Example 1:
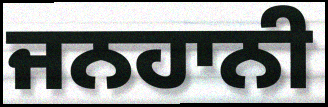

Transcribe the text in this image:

ਜਨਹਾਨੀ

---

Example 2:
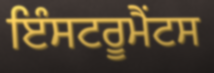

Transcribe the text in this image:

ਇੰਸਟਰੂਮੈਂਟਸ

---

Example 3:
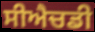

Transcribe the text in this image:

ਸੀਐਚਡੀ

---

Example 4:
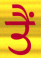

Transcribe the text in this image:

ਤੈਂ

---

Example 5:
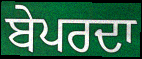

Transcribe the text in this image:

ਬੇਪਰਦਾ